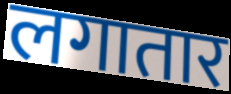
लगातार